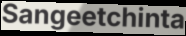
Sangeetchinta